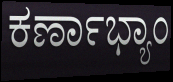
ಕರ್ಣಾಭ್ಯಾಂ